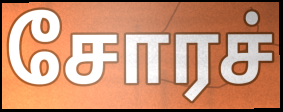
சோரச்